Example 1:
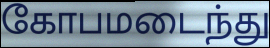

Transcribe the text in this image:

கோபமடைந்து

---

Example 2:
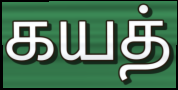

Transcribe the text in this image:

கயத்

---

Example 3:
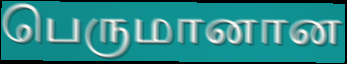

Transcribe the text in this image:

பெருமானான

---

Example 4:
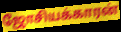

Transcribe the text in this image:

ஜோசியக்காரன்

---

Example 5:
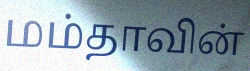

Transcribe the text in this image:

மம்தாவின்